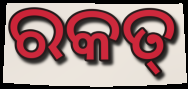
ରକତ୍